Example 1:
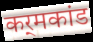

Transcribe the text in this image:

कर्मकांड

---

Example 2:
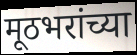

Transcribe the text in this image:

मूठभरांच्या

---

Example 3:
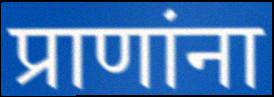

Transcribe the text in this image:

प्राणांना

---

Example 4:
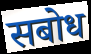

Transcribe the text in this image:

सबोध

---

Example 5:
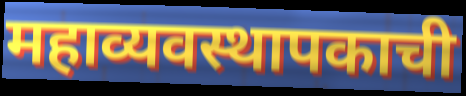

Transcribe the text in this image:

महाव्यवस्थापकाची